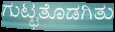
ಗುಟ್ಟತೊಡಗಿತು